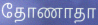
தோணாதா